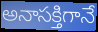
అనాసక్తిగానే